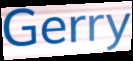
Gerry